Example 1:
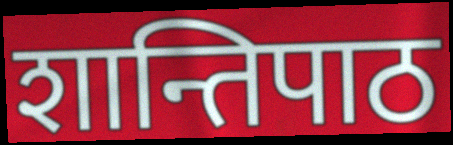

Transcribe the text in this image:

शान्तिपाठ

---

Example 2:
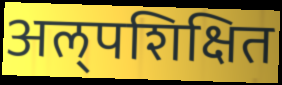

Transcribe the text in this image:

अल्पशिक्षित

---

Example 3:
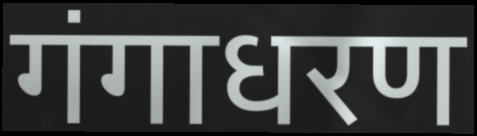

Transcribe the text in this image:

गंगाधरण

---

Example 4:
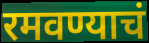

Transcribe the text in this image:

रमवण्याचं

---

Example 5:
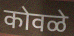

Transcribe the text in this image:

कोवळे